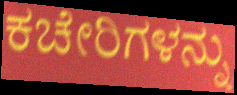
ಕಚೇರಿಗಳನ್ನು